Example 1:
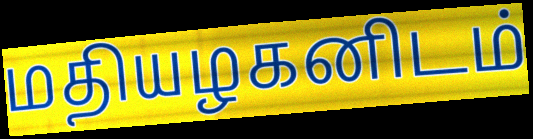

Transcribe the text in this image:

மதியழகனிடம்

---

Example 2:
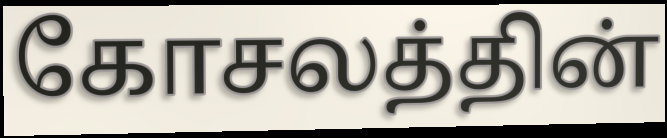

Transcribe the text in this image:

கோசலத்தின்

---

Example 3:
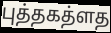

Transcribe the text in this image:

புத்தகத்ளத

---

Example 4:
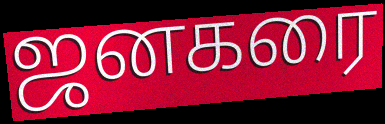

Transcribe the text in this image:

ஜனகரை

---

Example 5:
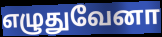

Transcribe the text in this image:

எழுதுவேனா